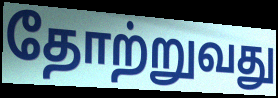
தோற்றுவது